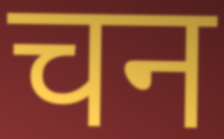
चन